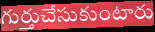
గుర్తుచేసుకుంటారు